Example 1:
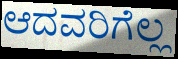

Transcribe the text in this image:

ಆದವರಿಗೆಲ್ಲ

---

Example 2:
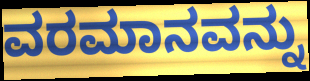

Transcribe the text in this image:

ವರಮಾನವನ್ನು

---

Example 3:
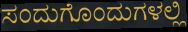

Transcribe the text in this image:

ಸಂದುಗೊಂದುಗಳಲ್ಲಿ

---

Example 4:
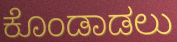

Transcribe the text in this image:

ಕೊಂಡಾಡಲು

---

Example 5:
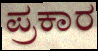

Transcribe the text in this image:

ಪ್ರಕಾರ